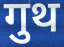
गुथ